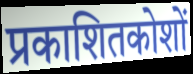
प्रकाशितकोशों